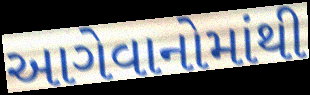
આગેવાનોમાંથી